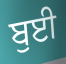
ਬੁਈ